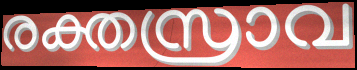
രക്തസ്രാവ